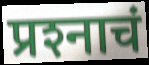
प्रश्नाचं